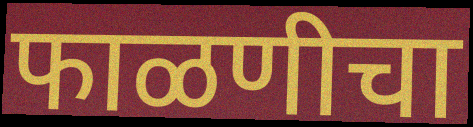
फाळणीचा